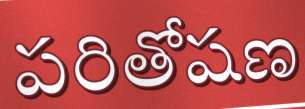
పరితోషణ